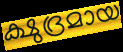
ക്ഷുദ്രമായ